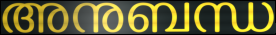
അനുബന്ധ